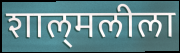
शाल्मलीला